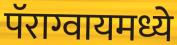
पॅराग्वायमध्ये